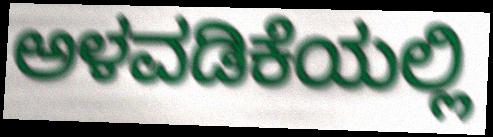
ಅಳವಡಿಕೆಯಲ್ಲಿ